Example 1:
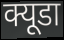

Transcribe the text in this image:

क्यूडा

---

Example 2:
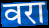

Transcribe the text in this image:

वरा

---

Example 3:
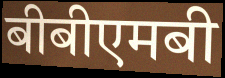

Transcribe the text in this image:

बीबीएमबी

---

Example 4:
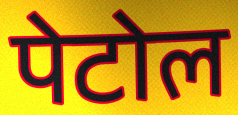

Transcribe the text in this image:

पेटोल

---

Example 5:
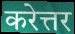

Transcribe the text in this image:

करेत्तर